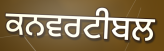
ਕਨਵਰਟੀਬਲ